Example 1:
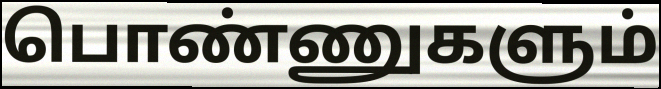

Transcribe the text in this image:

பொண்ணுகளும்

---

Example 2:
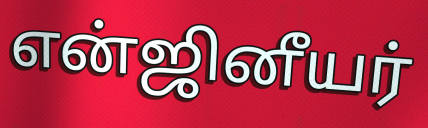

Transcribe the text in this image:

என்ஜினீயர்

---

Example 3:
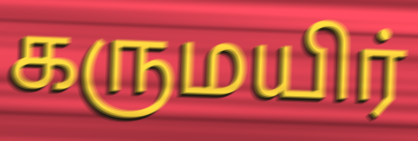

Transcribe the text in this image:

கருமயிர்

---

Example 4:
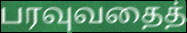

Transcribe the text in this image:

பரவுவதைத்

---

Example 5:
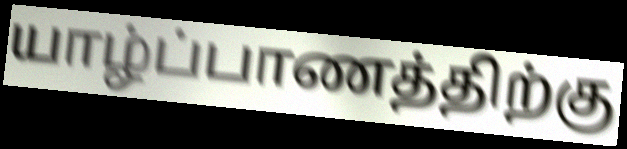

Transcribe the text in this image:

யாழ்ப்பாணத்திற்கு